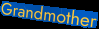
Grandmother